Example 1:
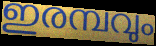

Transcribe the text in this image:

ഇരമ്പവും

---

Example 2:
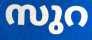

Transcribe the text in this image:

സുറ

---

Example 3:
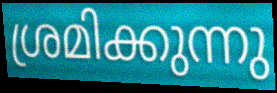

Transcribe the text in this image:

ശ്രമിക്കുന്നു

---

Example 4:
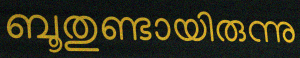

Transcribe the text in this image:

ബൂതുണ്ടായിരുന്നു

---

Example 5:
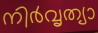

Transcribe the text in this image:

നിർവൃത്യാ